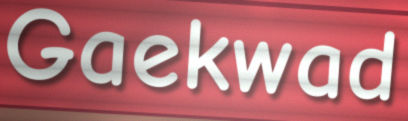
Gaekwad